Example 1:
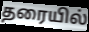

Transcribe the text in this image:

தரையில்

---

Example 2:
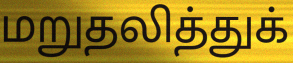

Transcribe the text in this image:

மறுதலித்துக்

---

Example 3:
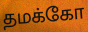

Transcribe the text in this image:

தமக்கோ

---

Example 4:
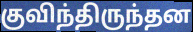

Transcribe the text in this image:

குவிந்திருந்தன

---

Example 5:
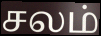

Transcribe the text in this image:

சலம்